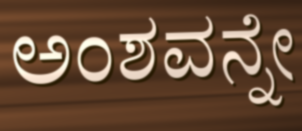
ಅಂಶವನ್ನೇ